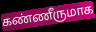
கண்ணீருமாக